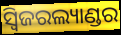
ସ୍ୱିଜରଲ୍ୟାଣ୍ଡର